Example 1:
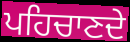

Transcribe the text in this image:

ਪਹਿਚਾਣਦੇ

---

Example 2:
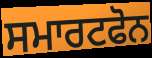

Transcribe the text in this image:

ਸਮਾਰਟਫੋਨ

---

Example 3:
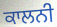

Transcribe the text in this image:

ਕਾਲਨੀ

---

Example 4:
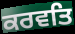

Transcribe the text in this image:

ਕਰਵਤਿ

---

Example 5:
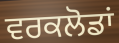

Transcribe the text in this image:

ਵਰਕਲੋਡਾਂ